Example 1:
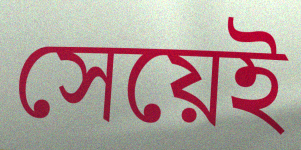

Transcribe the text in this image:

সেয়েই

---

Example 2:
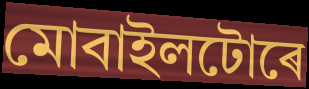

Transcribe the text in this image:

মোবাইলটোৰে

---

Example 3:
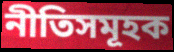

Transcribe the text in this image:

নীতিসমূহক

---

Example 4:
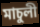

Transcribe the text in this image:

মাচুলী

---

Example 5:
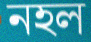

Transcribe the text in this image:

নহল